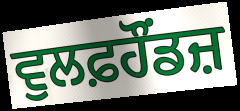
ਵੁਲਫ਼ਹੌਂਡਜ਼